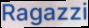
Ragazzi